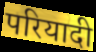
परियादी